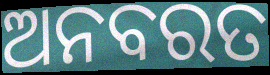
ଅନବରତ